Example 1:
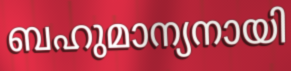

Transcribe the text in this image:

ബഹുമാന്യനായി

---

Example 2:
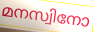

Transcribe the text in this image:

മനസ്വിനോ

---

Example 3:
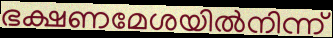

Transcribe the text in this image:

ഭക്ഷണമേശയിൽനിന്ന്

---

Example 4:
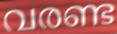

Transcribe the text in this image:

വരണ്ട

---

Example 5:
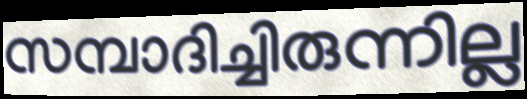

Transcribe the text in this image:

സമ്പാദിച്ചിരുന്നില്ല